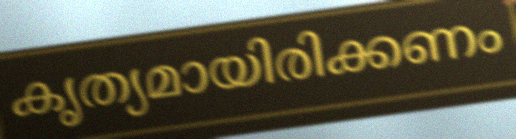
കൃത്യമായിരിക്കണം